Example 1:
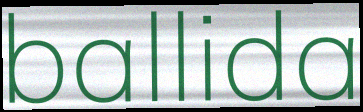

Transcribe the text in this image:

ballida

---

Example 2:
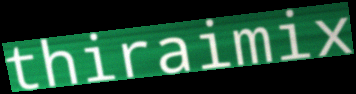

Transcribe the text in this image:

thiraimix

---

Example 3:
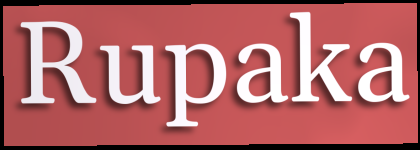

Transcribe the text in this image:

Rupaka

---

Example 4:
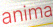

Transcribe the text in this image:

anima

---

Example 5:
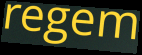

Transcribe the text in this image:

regem